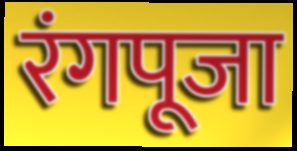
रंगपूजा